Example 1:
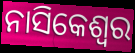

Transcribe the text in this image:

ନାସିକେଶ୍ୱର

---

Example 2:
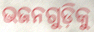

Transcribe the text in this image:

ଭଜନଗୁଡ଼ିକୁ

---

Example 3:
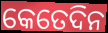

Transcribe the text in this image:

କେତେଦିନ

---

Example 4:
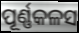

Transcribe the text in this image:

ପୂର୍ଣ୍ଣକଳସ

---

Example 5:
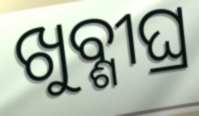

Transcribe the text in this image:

ଖୁବ୍ଶୀଘ୍ର